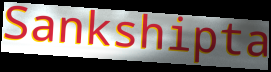
Sankshipta